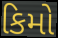
કિમો